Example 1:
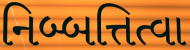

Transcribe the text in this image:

નિબ્બત્તિત્વા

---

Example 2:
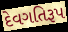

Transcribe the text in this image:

દેવગતિરૂપ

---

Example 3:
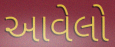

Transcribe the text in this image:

આવેલો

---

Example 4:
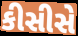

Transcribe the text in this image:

કીસીસે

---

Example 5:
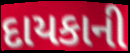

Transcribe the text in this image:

દાયકાની